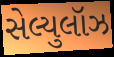
સેલ્યુલૉઝ